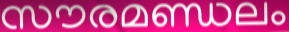
സൗരമണ്ഡലം